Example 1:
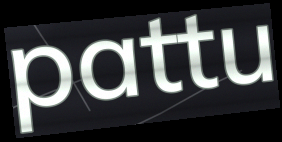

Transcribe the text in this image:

pattu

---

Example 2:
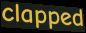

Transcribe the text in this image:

clapped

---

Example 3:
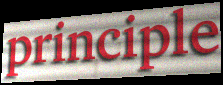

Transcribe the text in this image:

principle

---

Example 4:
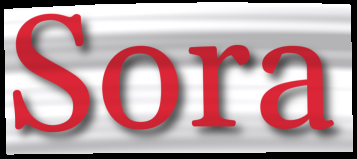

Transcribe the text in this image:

Sora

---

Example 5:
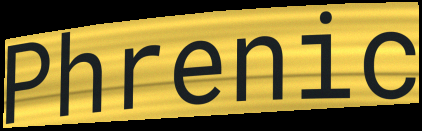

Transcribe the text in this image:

Phrenic